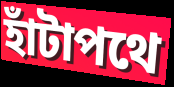
হাঁটাপথে